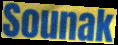
Sounak